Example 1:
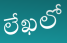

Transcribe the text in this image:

లేఖలో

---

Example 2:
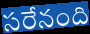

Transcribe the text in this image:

సరేనంది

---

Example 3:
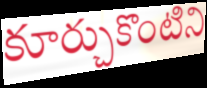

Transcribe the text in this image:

కూర్చుకొంటిని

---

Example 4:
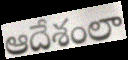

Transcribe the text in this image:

ఆదేశంలా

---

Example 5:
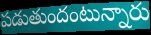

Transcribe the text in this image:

పడుతుందంటున్నారు